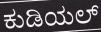
ಕುಡಿಯಲ್